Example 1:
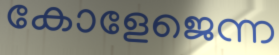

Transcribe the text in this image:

കോളേജെന്ന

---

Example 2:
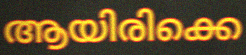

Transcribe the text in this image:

ആയിരിക്കെ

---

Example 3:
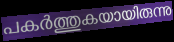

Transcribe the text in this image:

പകർത്തുകയായിരുന്നു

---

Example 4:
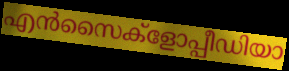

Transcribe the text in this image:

എൻസൈക്ളോപ്പീഡിയാ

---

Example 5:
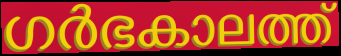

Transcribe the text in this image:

ഗർഭകാലത്ത്